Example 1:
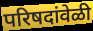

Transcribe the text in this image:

परिषदांवेळी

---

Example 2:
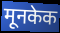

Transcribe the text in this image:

मूनकेक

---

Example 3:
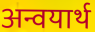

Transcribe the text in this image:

अन्वयार्थ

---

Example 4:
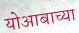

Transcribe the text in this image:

योआबाच्या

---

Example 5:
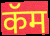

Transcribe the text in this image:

कॅम